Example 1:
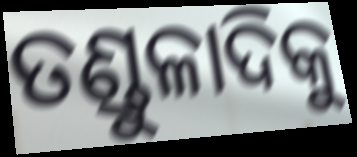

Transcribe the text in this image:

ତଣ୍ଡୁଳାଦିକୁ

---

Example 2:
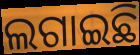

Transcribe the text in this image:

ଲଗାଇଛି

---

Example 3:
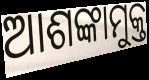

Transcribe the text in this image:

ଆଶଙ୍କାମୁକ୍ତ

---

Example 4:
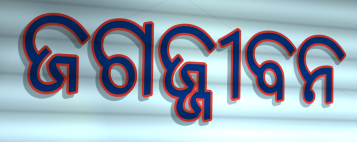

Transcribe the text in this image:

ଜଗଜ୍ଜୀବନ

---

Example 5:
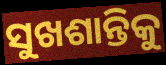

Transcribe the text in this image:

ସୁଖଶାନ୍ତିକୁ